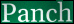
Panch